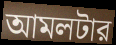
আমলটার